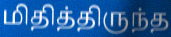
மிதித்திருந்த